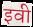
इवी